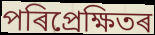
পৰিপ্ৰেক্ষিতৰ